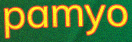
pamyo